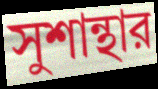
সুশান্থার